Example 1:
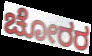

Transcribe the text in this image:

ಚೋರರ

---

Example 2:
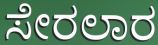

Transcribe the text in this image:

ಸೇರಲಾರ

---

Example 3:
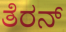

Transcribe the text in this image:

ತೆರನ್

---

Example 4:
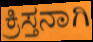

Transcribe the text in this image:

ಕ್ರಿಸ್ತನಾಗಿ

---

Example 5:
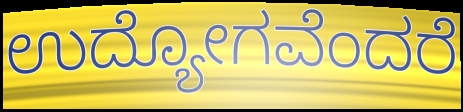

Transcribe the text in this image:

ಉದ್ಯೋಗವೆಂದರೆ